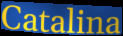
Catalina